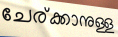
ചേര്ക്കാനുള്ള